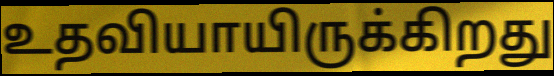
உதவியாயிருக்கிறது